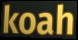
koah